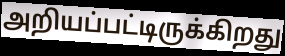
அறியப்பட்டிருக்கிறது